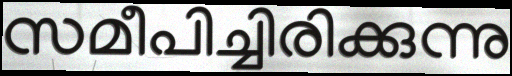
സമീപിച്ചിരിക്കുന്നു